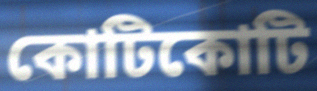
কোটিকোটি